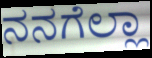
ನನಗೆಲ್ಲಾ